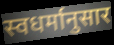
स्वधर्मानुसार